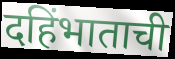
दहिंभाताची